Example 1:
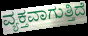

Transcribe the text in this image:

ವ್ಯಕ್ತವಾಗುತ್ತಿದೆ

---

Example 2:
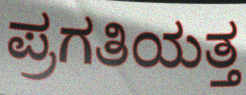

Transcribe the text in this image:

ಪ್ರಗತಿಯತ್ತ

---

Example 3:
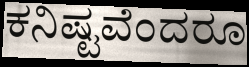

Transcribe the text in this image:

ಕನಿಷ್ಟವೆಂದರೂ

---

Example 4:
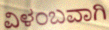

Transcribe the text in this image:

ವಿಳಂಬವಾಗಿ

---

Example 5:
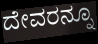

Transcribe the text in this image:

ದೇವರನ್ನೂ